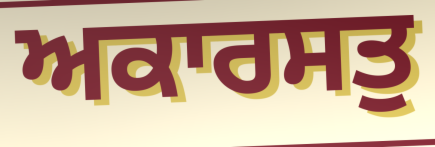
ਅਕਾਰਸਤੁ